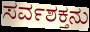
ಸರ್ವಶಕ್ತನು